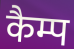
कैम्प